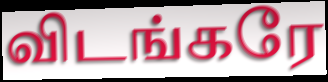
விடங்கரே